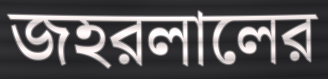
জহরলালের